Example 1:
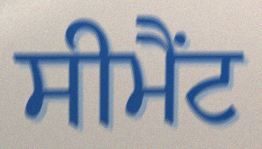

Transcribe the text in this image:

ਸੀਮੈੰਟ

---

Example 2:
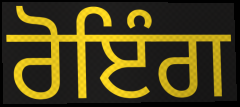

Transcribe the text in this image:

ਰੋਇੰਗ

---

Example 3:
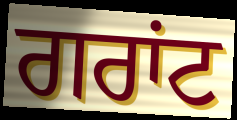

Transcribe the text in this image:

ਗਰਾਂਟ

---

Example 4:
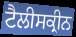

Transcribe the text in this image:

ਟੈਲੀਸਕ੍ਰੀਨ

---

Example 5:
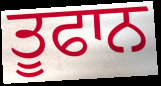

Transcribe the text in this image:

ਤੂਫਾਨ